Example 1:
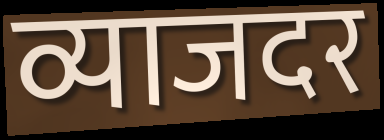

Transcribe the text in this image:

व्याजदर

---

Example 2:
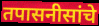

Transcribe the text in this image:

तपासनीसांचे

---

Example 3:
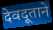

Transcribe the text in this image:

देवदूताने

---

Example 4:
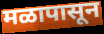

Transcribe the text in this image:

मळापासून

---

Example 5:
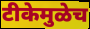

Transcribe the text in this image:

टीकेमुळेच